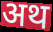
अथ